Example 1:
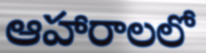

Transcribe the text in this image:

ఆహారాలలో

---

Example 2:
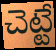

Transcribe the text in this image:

చెట్టే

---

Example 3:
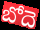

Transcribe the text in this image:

బోదె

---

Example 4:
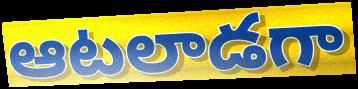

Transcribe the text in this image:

ఆటలాడగా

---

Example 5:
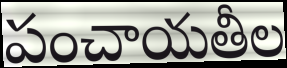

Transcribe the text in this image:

పంచాయతీల